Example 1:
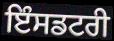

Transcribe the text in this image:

ਇੰਸਡਟਰੀ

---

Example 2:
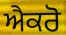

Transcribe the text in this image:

ਐਕਰੋ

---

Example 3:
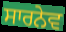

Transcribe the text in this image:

ਸਾਰਨੇਵ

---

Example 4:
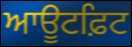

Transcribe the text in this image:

ਆਊਟਫ਼ਿਟ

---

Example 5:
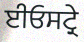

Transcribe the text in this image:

ਈਓਸਟ੍ਰੇ